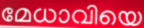
മേധാവിയെ